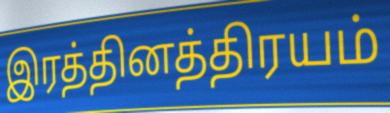
இரத்தினத்திரயம்